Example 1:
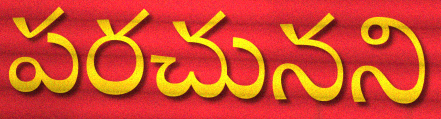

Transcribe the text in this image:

పరచునని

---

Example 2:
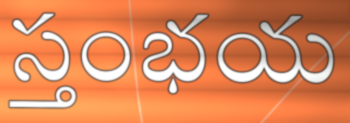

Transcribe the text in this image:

స్తంభయ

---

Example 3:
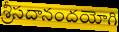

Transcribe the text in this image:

శ్రీసదానందయోగి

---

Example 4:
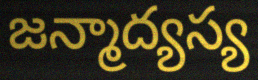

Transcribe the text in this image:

జన్మాద్యస్య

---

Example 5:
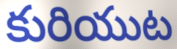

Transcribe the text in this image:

కురియుట